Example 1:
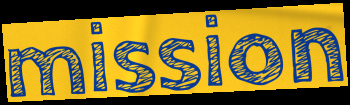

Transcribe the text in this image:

mission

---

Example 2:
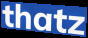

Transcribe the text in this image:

thatz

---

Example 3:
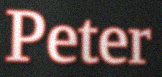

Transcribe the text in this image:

Peter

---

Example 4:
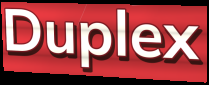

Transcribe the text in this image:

Duplex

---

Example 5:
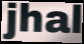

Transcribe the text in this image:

jhal